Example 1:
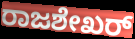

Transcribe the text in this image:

ರಾಜಶೇಖರ್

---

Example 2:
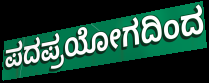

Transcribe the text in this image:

ಪದಪ್ರಯೋಗದಿಂದ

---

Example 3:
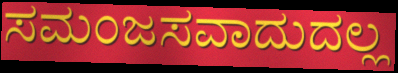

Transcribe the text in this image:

ಸಮಂಜಸವಾದುದಲ್ಲ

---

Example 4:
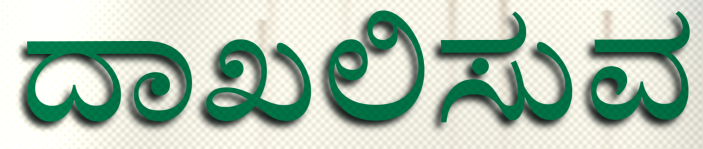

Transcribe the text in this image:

ದಾಖಲಿಸುವ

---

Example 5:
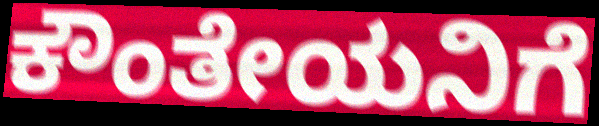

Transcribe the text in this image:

ಕೌಂತೇಯನಿಗೆ